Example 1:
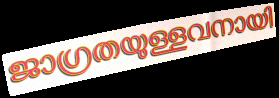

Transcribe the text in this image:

ജാഗ്രതയുള്ളവനായി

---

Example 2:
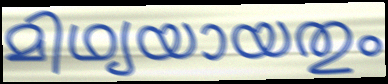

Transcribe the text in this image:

മിഥ്യയായതും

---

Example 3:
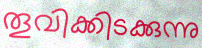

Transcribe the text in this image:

തൂവിക്കിടക്കുന്നു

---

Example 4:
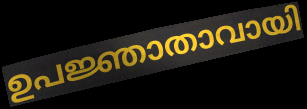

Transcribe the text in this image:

ഉപജ്ഞാതാവായി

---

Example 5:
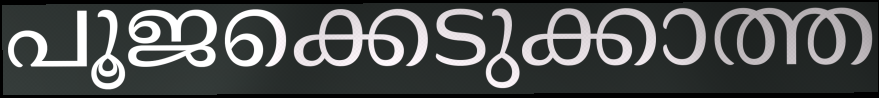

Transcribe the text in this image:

പൂജക്കെടുക്കാത്ത